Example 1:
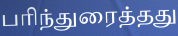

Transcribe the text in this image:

பரிந்துரைத்தது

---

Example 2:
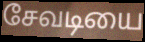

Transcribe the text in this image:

சேவடியை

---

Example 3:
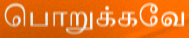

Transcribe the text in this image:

பொறுக்கவே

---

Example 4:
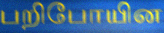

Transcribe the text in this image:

பறிபோயின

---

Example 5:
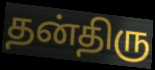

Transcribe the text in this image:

தன்திரு